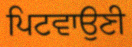
ਪਿਟਵਾਉਣੀ